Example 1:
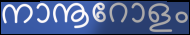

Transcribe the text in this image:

നാനൂറോളം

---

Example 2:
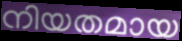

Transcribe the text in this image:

നിയതമായ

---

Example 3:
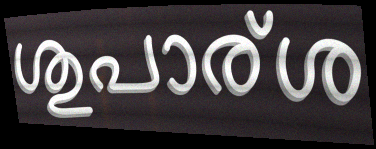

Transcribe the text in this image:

ശുപാര്ശ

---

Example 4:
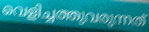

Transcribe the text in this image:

വെളിച്ചത്തുവരുന്നത്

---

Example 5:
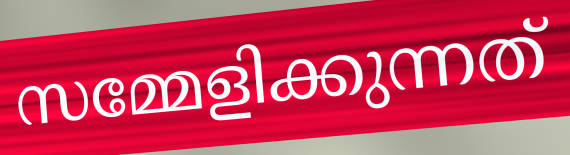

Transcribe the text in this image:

സമ്മേളിക്കുന്നത്